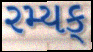
રમ્યક્